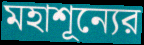
মহাশূন্যের